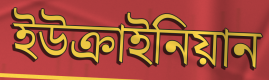
ইউক্রাইনিয়ান